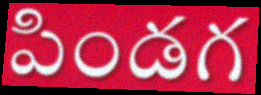
పిండగ